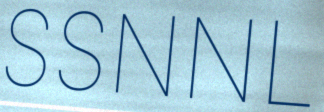
SSNNL